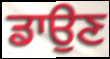
ਡਾਉਣ